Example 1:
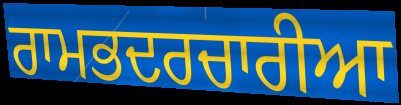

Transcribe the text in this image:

ਰਾਮਭਦਰਚਾਰੀਆ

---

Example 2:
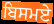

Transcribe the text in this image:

ਬਿਸਮਏ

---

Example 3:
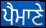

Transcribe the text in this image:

ਪੈਮਾਣੇ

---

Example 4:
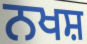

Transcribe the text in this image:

ਨਖਸ਼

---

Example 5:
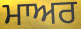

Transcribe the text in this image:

ਮਾਅਰ